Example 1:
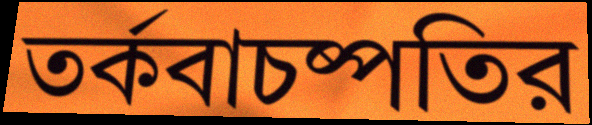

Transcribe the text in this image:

তর্কবাচষ্পতির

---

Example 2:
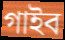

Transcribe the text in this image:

গাইব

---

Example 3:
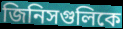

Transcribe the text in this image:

জিনিসগুলিকে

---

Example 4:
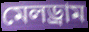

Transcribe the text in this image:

মেলড্রাম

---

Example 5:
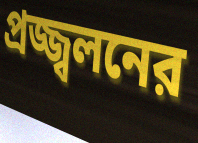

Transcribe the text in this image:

প্রজ্জ্বলনের